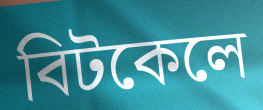
বিটকেলে